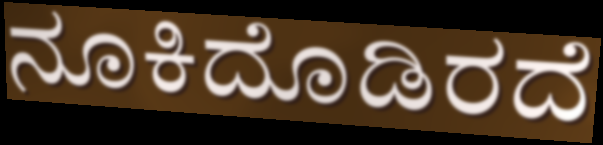
ನೂಕಿದೊಡಿರದೆ